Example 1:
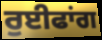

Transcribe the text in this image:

ਰੁਈਫਾਂਗ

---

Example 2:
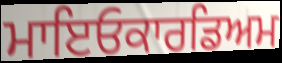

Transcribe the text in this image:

ਮਾਇਓਕਾਰਡਿਅਮ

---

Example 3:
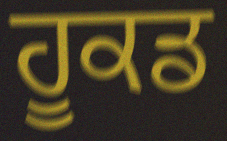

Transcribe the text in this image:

ਹੂਕਡ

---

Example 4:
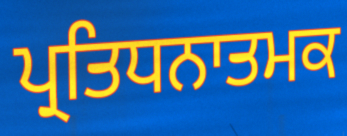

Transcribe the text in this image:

ਪ੍ਰਤਿਧਨਾਤਮਕ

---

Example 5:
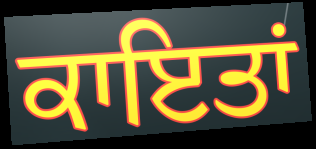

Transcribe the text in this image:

ਕਾਇਤਾਂ